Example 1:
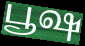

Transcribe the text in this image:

பூஷ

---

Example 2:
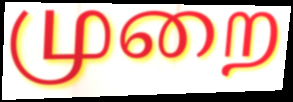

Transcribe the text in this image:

முறை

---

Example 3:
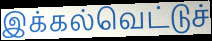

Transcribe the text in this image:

இக்கல்வெட்டுச்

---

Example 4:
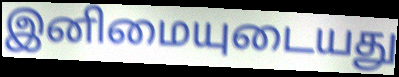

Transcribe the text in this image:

இனிமையுடையது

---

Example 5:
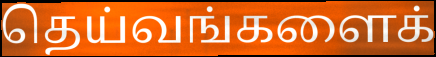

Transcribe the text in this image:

தெய்வங்களைக்